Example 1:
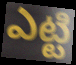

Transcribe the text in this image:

ఎట్టి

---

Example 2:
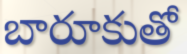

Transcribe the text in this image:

బారూకుతో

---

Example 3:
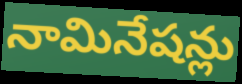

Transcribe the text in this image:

నామినేషన్లు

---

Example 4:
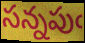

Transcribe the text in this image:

సన్నపుఁ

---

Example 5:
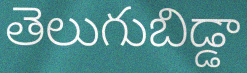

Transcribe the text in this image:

తెలుగుబిడ్డా